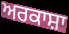
ਅਰਕਾਸ਼ਾ